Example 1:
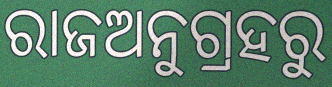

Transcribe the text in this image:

ରାଜଅନୁଗ୍ରହରୁ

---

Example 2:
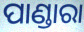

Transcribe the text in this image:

ପାଣ୍ଡାରା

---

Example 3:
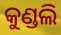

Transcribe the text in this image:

କୁଣ୍ଡଲି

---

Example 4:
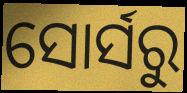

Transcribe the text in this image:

ସୋର୍ସରୁ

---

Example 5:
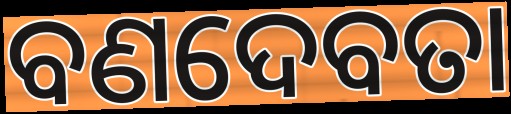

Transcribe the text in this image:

ବଣଦେବତା